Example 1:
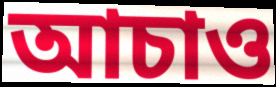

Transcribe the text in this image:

আচাও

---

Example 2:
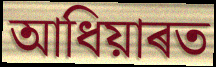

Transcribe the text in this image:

আধিয়াৰত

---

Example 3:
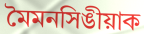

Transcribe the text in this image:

মৈমনসিঙীয়াক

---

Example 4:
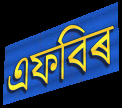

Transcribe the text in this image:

এফবিৰ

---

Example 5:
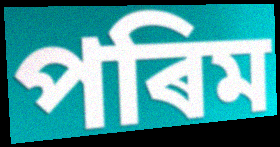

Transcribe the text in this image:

পৰিম